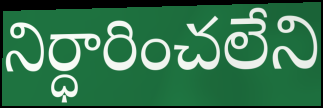
నిర్ధారించలేని